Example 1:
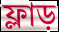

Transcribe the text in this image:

ফ্লাড়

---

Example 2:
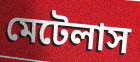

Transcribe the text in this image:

মেটেলাস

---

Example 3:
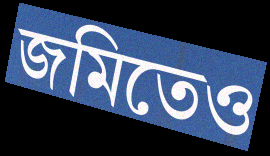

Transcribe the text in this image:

জমিতেও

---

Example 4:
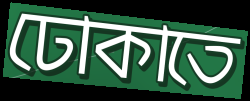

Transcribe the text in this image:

ঢোকাতে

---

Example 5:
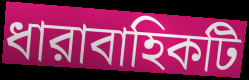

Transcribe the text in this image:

ধারাবাহিকটি